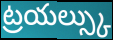
ట్రయల్స్కు